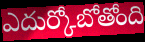
ఎదుర్కోబోతోంది